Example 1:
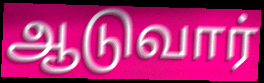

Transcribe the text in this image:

ஆடுவார்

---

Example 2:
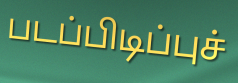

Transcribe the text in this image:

படப்பிடிப்புச்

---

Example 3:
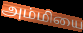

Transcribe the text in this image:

அம்மியை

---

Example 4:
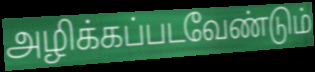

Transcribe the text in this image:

அழிக்கப்படவேண்டும்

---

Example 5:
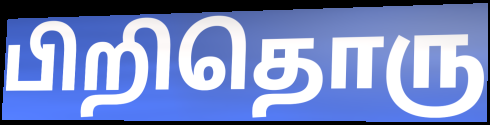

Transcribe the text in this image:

பிறிதொரு